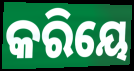
କରିୟେ